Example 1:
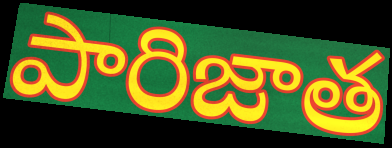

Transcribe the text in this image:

పారిజాత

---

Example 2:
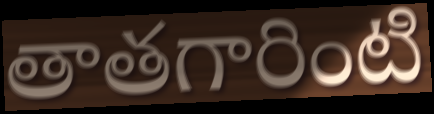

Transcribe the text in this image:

తాతగారింటి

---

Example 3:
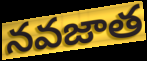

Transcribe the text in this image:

నవజాత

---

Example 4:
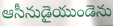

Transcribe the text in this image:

ఆసీనుడైయుండెను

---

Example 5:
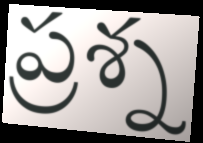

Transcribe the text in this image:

ప్రశ్న